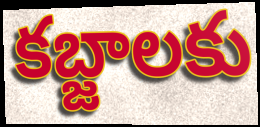
కబ్జాలకు